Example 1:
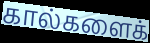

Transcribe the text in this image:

கால்களைக்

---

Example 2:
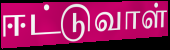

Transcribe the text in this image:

ஈட்டுவாள்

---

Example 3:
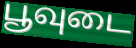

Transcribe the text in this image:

பூவுடை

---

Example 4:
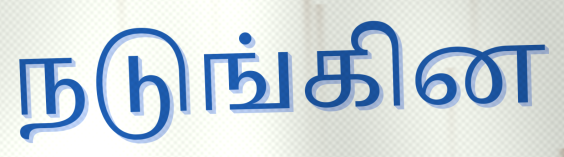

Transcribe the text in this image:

நடுங்கின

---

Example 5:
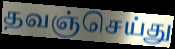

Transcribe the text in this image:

தவஞ்செய்து